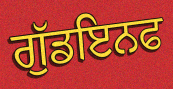
ਗੁੱਡਇਨਫ